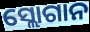
ସ୍ଲୋଗାନ